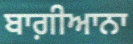
ਬਾਗ਼ੀਆਨਾ